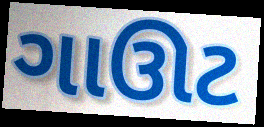
ગાઊટ